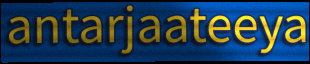
antarjaateeya